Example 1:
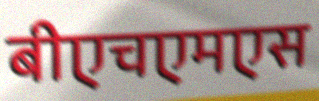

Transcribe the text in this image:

बीएचएमएस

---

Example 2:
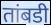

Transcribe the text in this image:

तांबडी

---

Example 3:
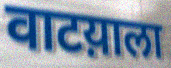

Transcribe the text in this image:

वाटय़ाला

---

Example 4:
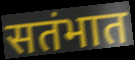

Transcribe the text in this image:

सतंभात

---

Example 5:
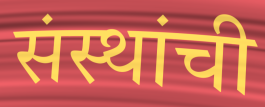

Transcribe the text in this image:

संस्थांची